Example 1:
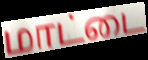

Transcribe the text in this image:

மாட்டை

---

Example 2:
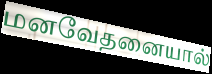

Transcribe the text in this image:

மனவேதனையால்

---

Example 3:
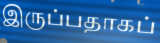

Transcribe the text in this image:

இருப்பதாகப்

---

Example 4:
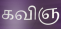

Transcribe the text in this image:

கவிஞ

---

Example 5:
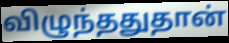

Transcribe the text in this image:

விழுந்ததுதான்